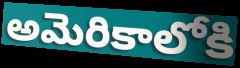
అమెరికాలోకి